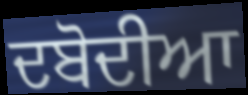
ਦਬੋਦੀਆ